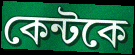
কেন্টকে